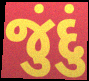
જુંદું